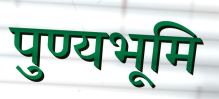
पुण्यभूमि